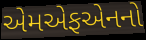
એમએફએનનો